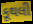
કૂથલી